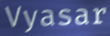
Vyasar